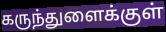
கருந்துளைக்குள்